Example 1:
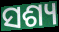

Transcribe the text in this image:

ସଶ୍ୟ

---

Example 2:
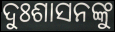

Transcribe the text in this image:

ଦୁଃଶାସନଙ୍କୁ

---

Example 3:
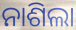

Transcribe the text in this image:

ନାଶିଲା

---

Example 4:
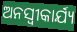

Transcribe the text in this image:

ଅନସ୍ବୀକାର୍ଯ୍ୟ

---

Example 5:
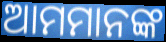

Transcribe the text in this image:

ଆମମାନଙ୍କ